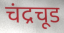
चंद्रचूड